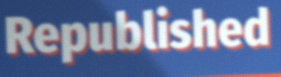
Republished